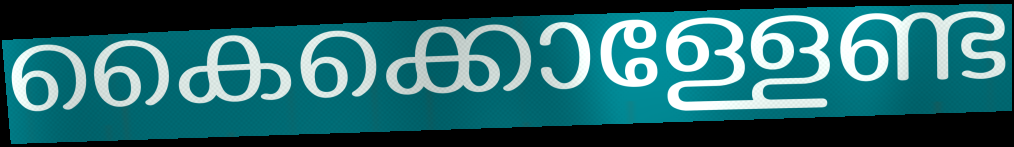
കൈക്കൊള്ളേണ്ട